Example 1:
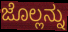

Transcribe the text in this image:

ಜೊಲ್ಲನ್ನು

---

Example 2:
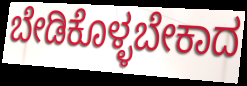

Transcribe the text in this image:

ಬೇಡಿಕೊಳ್ಳಬೇಕಾದ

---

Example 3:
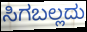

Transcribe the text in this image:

ಸಿಗಬಲ್ಲದು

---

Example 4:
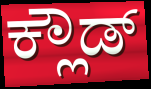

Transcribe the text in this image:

ಕ್ಲೌಡ್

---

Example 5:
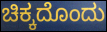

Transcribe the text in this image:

ಚಿಕ್ಕದೊಂದು